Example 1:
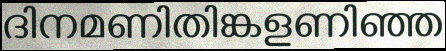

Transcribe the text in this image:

ദിനമണിതിങ്കളണിഞ്ഞ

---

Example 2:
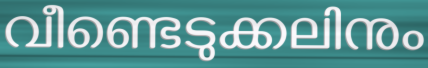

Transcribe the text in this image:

വീണ്ടെടുക്കലിനും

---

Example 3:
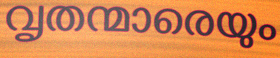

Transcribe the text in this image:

വൃതന്മാരെയും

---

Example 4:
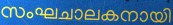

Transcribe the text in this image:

സംഘചാലകനായി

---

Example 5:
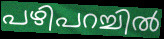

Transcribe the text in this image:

പഴിപറച്ചിൽ